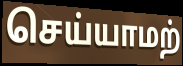
செய்யாமற்